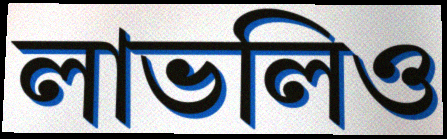
লাভলিও